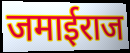
जमाईराज